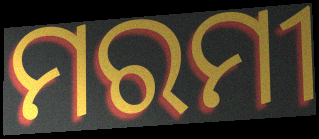
ମରମୀ